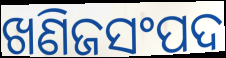
ଖଣିଜସଂପଦ